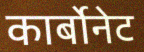
कार्बोनेट